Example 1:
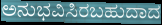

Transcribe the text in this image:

ಅನುಭವಿಸಿರಬಹುದಾದ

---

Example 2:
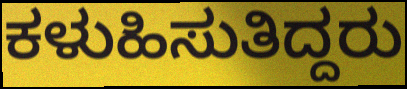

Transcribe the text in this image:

ಕಳುಹಿಸುತಿದ್ದರು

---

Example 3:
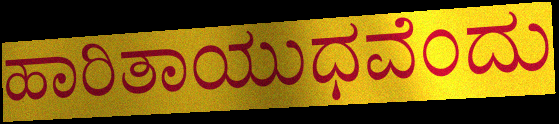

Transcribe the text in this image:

ಹಾರಿತಾಯುಧವೆಂದು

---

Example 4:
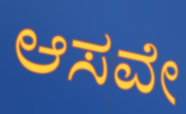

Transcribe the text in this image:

ಆಸವೇ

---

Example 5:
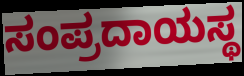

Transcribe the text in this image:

ಸಂಪ್ರದಾಯಸ್ಥ